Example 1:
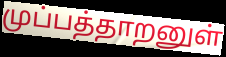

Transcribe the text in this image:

முப்பத்தாறனுள்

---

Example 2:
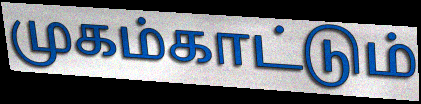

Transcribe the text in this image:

முகம்காட்டும்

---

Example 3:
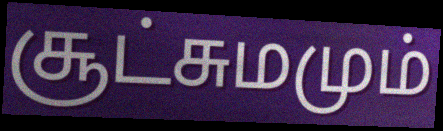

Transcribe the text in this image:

சூட்சுமமும்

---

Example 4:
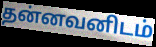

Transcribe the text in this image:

தன்னவனிடம்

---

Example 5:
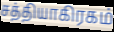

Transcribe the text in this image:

சத்தியாகிரகம்